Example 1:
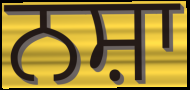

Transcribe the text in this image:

ਨਸ਼ਾ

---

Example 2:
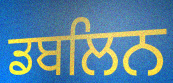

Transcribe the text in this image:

ਡਬਲਿਨ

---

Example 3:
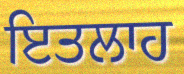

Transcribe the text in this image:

ਇਤਲਾਹ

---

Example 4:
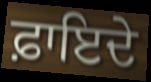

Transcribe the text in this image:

ਫ਼ਾਇਦੇ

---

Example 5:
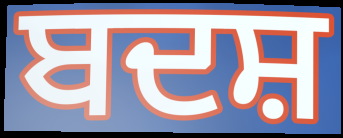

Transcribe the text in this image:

ਬਦਸ਼